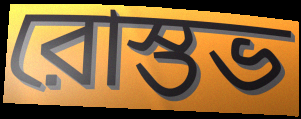
রোস্তভ